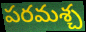
పరమశ్చ